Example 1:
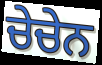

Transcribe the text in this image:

ਚੇਚੇਨ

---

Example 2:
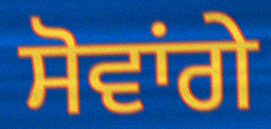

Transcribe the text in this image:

ਸੋਵਾਂਗੇ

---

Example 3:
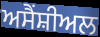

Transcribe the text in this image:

ਅਸੈਂਸ਼ੀਅਲ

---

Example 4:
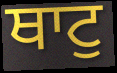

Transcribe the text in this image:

ਥਾਟੁ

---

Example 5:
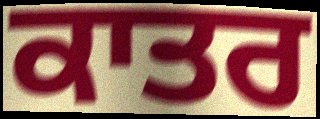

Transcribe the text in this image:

ਕਾਤਰ